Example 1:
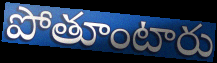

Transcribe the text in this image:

పోతూంటారు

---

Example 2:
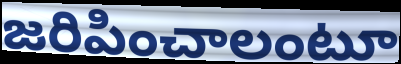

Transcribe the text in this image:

జరిపించాలంటూ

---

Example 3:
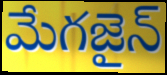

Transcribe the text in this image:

మేగజైన్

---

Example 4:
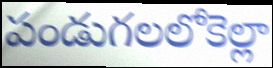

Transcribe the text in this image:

పండుగలలోకెల్లా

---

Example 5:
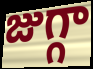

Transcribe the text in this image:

జుగ్గా